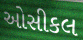
ઓસીકલ